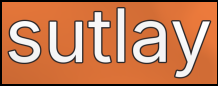
sutlay